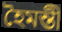
হৈমন্তী